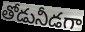
తోడునీడగా